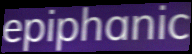
epiphanic